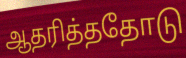
ஆதரித்ததோடு